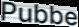
Pubbe